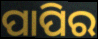
ପାପିର